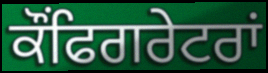
ਕੌਂਫਿਗਰੇਟਰਾਂ